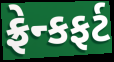
ફ્રેન્કફર્ટ